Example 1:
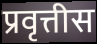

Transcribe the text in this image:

प्रवृत्तीस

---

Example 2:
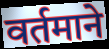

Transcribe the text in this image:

वर्तमाने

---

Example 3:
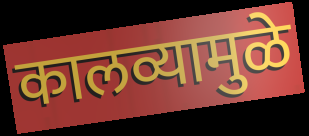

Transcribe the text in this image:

कालव्यामुळे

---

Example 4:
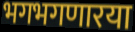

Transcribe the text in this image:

भगभगणारया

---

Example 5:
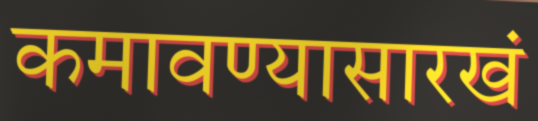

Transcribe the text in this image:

कमावण्यासारखं